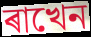
ৰাখেন